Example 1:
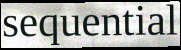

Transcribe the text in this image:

sequential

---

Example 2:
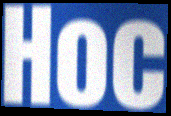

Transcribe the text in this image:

Hoc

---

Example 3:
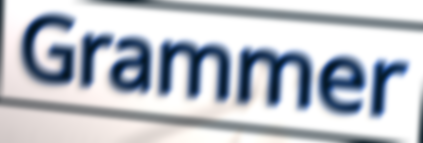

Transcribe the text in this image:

Grammer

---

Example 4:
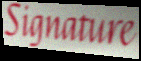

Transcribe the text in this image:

Signature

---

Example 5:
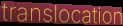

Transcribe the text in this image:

translocation